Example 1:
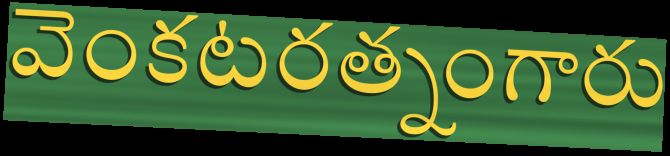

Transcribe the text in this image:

వెంకటరత్నంగారు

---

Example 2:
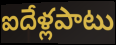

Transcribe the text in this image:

ఐదేళ్లపాటు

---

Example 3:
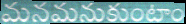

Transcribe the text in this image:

మనమనుకుంటాం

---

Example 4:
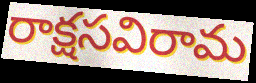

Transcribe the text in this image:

రాక్షసవిరామ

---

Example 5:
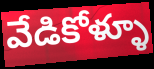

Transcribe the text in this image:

వేడికోళ్ళూ